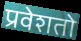
प्रवेशतो